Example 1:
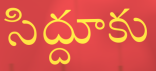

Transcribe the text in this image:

సిద్దూకు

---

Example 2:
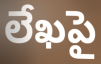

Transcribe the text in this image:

లేఖపై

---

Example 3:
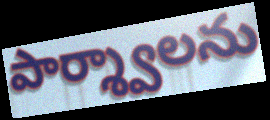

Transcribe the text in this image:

పార్శ్వాలను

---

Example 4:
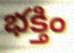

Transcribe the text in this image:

భక్తిం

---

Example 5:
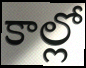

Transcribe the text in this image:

కాల్లో